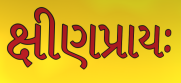
ક્ષીણપ્રાયઃ